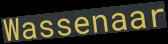
Wassenaar